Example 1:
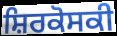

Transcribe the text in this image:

ਸ਼ਿਰਕੋਸਕੀ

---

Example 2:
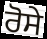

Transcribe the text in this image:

ਰੋਸੇ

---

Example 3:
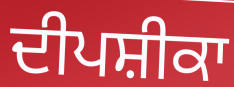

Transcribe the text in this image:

ਦੀਪਸ਼ੀਕਾ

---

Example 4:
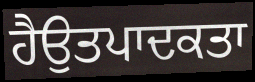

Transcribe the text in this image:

ਹੈਉਤਪਾਦਕਤਾ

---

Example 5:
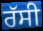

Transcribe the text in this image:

ਰੱਸੀ